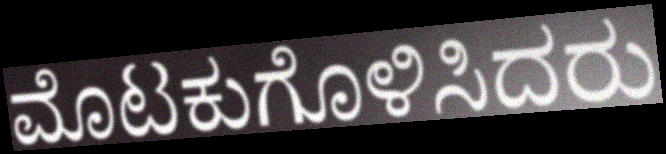
ಮೊಟಕುಗೊಳಿಸಿದರು